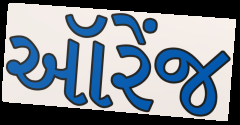
ઑરેંજ